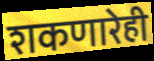
शकणारेही